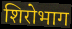
शिरोभाग